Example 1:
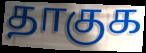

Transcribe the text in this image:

தாகுக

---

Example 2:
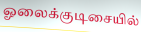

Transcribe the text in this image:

ஓலைக்குடிசையில்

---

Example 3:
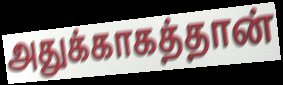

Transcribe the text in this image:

அதுக்காகத்தான்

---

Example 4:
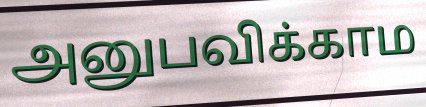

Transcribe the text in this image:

அனுபவிக்காம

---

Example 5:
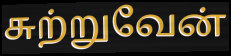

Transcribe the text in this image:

சுற்றுவேன்